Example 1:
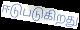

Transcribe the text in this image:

ஈடுபடுகிறது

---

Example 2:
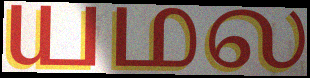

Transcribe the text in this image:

யமல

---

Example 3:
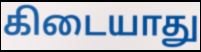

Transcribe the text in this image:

கிடையாது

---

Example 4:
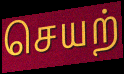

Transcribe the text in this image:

செயற்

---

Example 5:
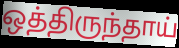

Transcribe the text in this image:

ஒத்திருந்தாய்